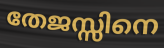
തേജസ്സിനെ